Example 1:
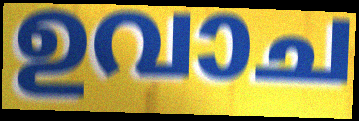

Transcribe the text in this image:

ഉവാച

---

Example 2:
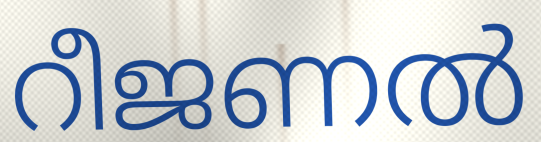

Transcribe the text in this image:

റീജണൽ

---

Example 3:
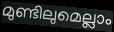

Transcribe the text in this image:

മുണ്ടിലുമെല്ലാം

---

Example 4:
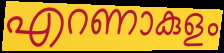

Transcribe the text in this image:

എറണാകുളം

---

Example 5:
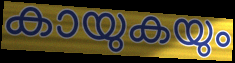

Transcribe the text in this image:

കായുകയും